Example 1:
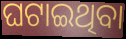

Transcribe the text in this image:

ଘଟାଇଥିବା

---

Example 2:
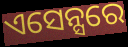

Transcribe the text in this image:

ଏସେନ୍ସରେ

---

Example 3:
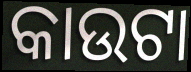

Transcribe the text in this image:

କାଉଟା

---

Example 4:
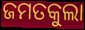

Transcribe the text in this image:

ଜମତକୁଲା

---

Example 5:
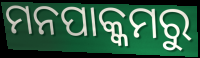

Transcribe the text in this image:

ମନପାକ୍କମରୁ